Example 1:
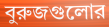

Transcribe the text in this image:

বুরুজগুলোর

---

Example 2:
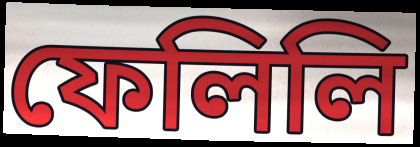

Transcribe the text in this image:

ফেলিলি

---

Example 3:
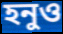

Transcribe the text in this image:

হনুও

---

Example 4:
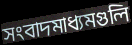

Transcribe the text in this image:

সংবাদমাধ্যমগুলি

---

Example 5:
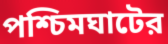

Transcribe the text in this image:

পশ্চিমঘাটের